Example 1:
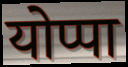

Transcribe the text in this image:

योप्पा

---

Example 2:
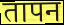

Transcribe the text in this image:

तापन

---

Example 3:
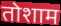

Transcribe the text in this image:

तोशाम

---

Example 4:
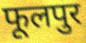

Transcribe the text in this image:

फूलपुर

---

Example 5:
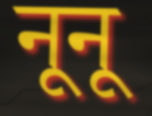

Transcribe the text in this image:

नूनू